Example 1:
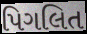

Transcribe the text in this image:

પિગલિત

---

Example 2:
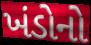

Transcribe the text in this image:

ખંડોનો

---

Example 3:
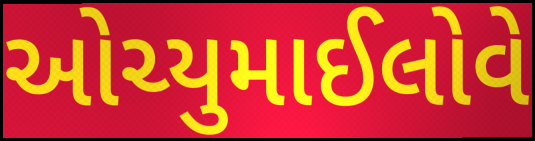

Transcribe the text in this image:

ઓચ્યુમાઈલોવે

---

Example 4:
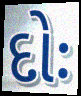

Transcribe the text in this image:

દોઃ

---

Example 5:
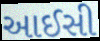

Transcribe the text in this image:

આઈસી